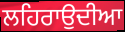
ਲਹਿਰਾਉਦੀਆ